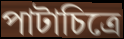
পাটাচিত্রে